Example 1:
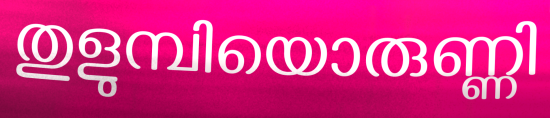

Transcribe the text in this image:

തുളുമ്പിയൊരുണ്ണി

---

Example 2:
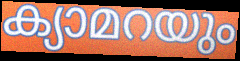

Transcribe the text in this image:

ക്യാമറയും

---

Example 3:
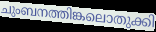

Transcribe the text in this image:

ചുംബനത്തിങ്കലൊതുക്കി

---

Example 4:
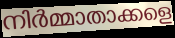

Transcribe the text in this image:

നിർമ്മാതാക്കളെ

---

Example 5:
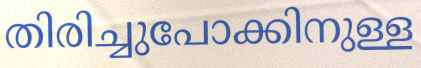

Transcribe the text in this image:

തിരിച്ചുപോക്കിനുള്ള